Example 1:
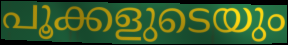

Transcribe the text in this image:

പൂക്കളുടെയും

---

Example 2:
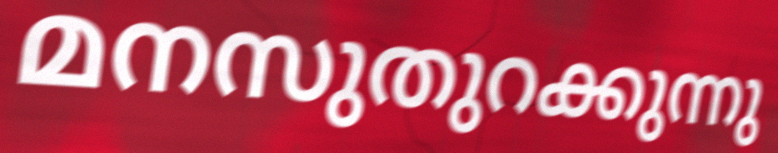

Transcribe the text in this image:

മനസുതുറക്കുന്നു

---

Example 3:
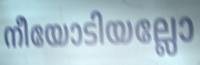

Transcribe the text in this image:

നീയോടിയല്ലോ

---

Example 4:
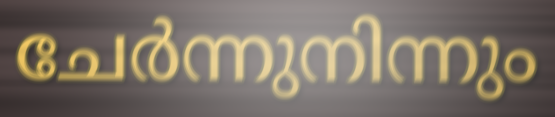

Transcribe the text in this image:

ചേർന്നുനിന്നും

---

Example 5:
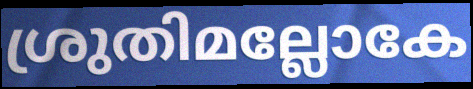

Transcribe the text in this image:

ശ്രുതിമല്ലോകേ